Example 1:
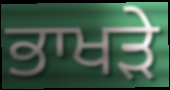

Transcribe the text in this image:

ਭਾਖੜੇ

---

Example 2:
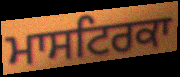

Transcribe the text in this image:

ਮਾਸਟਿਰਕਾ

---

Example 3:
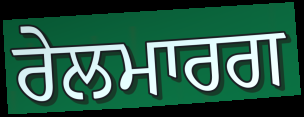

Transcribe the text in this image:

ਰੇਲਮਾਰਗ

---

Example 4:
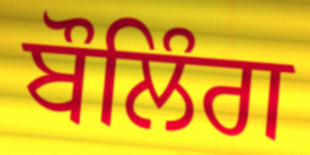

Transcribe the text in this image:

ਬੌਲਿੰਗ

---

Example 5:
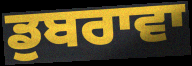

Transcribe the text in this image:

ਡੁਬਰਾਵਾ